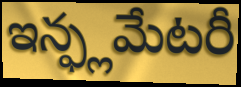
ఇన్ఫ్లమేటరీ